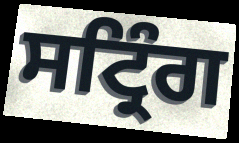
ਸਟ੍ਰਿੰਗ